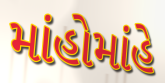
માંહોમાંહે